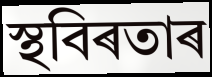
স্থবিৰতাৰ